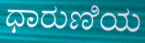
ಧಾರುಣಿಯ